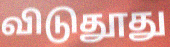
விடுதூது